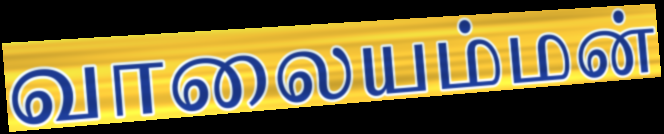
வாலையம்மன்